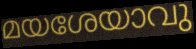
മയശേയാവു